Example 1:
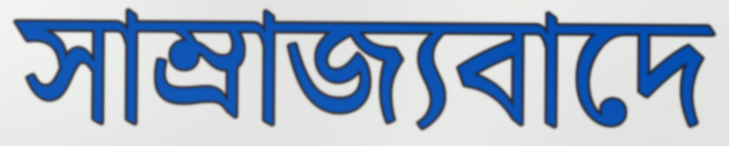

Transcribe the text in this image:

সাম্ৰাজ্যবাদে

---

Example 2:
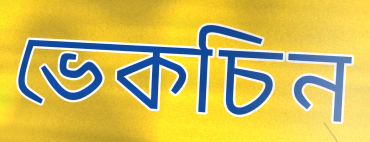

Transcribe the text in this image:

ভেকচিন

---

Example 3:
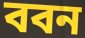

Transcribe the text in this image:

ববন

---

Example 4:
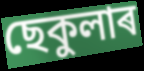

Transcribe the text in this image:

ছেকুলাৰ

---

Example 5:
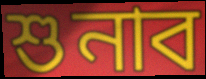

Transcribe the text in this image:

শুনাব